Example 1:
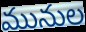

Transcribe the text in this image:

మునుల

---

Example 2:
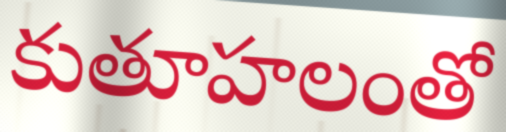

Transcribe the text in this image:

కుతూహలంతో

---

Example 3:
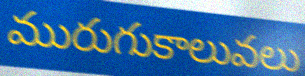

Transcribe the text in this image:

మురుగుకాలువలు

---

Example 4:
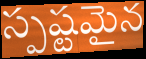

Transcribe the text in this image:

స్పష్టమైన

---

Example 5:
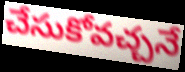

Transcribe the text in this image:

చేసుకోవచ్చనే